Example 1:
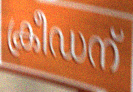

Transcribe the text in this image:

ക്രീഡന്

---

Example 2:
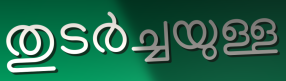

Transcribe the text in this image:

തുടർച്ചയുള്ള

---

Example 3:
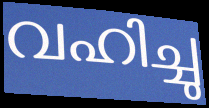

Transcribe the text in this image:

വഹിച്ചു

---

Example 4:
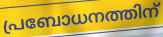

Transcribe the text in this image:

പ്രബോധനത്തിന്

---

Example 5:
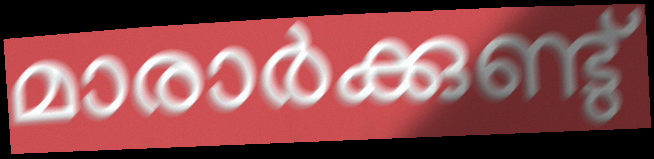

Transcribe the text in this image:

മാരാർക്കുണ്ടു്